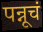
पन्नूचं